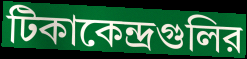
টিকাকেন্দ্রগুলির